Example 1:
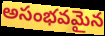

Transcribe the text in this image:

అసంభవమైన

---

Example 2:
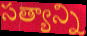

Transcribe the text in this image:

సత్యాన్ని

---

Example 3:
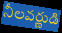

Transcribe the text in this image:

నీలవర్ణుడి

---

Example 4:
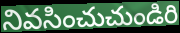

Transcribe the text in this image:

నివసించుచుండిరి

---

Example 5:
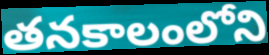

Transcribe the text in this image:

తనకాలంలోని